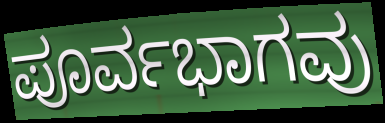
ಪೂರ್ವಭಾಗವು